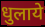
धुलाये